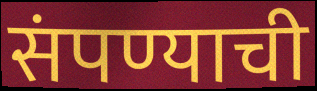
संपण्याची